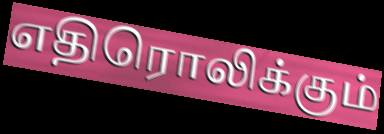
எதிரொலிக்கும்